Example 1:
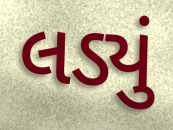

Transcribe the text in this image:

લડ્યું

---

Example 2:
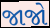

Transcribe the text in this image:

જાજો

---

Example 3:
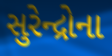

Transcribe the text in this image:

સુરેન્દ્રોના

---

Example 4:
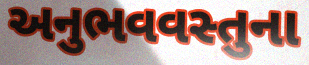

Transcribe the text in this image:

અનુભવવસ્તુના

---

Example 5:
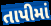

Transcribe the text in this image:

તાપીમાં